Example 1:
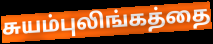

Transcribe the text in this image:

சுயம்புலிங்கத்தை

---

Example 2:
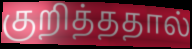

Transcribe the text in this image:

குறித்ததால்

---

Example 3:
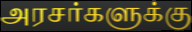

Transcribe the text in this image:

அரசர்களுக்கு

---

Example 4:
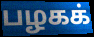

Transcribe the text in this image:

பழகக்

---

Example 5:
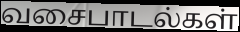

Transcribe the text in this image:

வசைபாடல்கள்